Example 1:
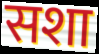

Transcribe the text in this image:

सशा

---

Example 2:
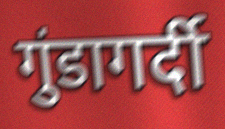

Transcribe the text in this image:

गुंडागर्दी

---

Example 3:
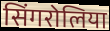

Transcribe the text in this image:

सिंगरोलिया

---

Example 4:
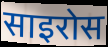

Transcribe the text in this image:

साइरोस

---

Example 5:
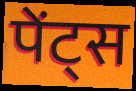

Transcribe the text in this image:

पेंट्स